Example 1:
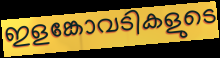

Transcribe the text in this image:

ഇളങ്കോവടികളുടെ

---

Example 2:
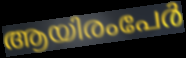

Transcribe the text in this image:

ആയിരംപേർ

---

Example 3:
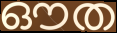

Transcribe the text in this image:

ഔത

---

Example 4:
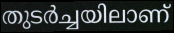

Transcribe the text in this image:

തുടർച്ചയിലാണ്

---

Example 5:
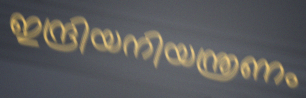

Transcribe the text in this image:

ഇന്ദ്രിയനിയന്ത്രണം